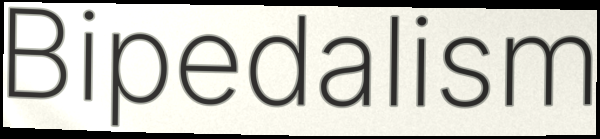
Bipedalism